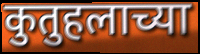
कुतुहलाच्या